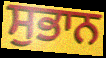
ਸੁਭਾਨ